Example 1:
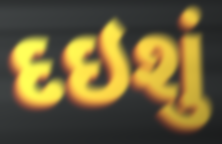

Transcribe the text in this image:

દઇશું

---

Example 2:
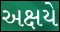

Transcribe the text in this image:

અક્ષયે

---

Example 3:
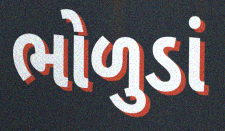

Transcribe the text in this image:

ભોળુડાં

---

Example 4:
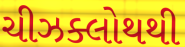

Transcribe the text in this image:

ચીઝક્લોથથી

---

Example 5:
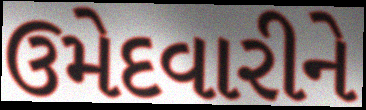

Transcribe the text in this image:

ઉમેદવારીને